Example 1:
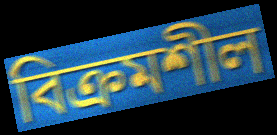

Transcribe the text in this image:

বিক্রমশীল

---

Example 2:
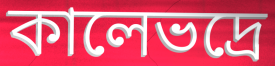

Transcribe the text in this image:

কালেভদ্রে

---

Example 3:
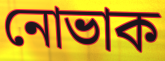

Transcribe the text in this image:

নোভাক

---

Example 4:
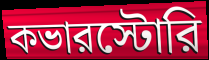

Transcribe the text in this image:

কভারস্টোরি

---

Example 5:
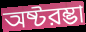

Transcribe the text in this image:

অষ্টরম্ভা